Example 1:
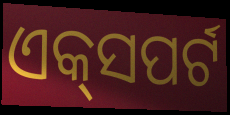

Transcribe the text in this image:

ଏକ୍‌ସପର୍ଟ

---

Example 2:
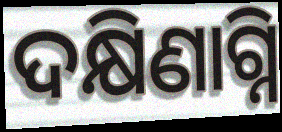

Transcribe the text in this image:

ଦକ୍ଷିଣାଗ୍ନି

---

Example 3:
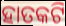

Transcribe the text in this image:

ହାତକଟି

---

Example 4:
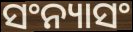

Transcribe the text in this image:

ସଂନ୍ୟାସଂ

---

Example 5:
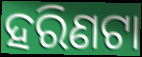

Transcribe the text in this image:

ହରିଣଟା